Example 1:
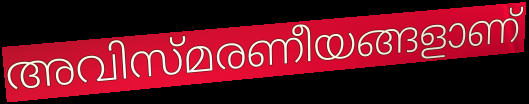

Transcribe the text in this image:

അവിസ്മരണീയങ്ങളാണ്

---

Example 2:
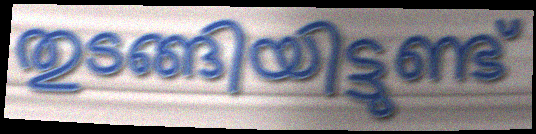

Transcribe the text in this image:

തുടങ്ങിയിട്ടുണ്ട്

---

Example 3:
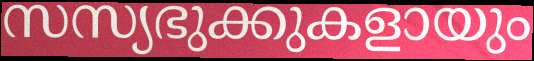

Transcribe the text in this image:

സസ്യഭുക്കുകളായും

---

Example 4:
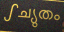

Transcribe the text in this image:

ഽച്യുതം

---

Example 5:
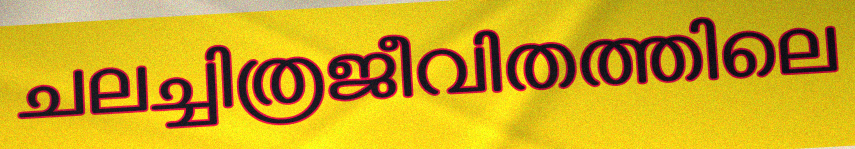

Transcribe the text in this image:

ചലച്ചിത്രജീവിതത്തിലെ